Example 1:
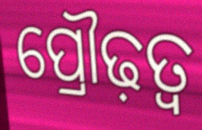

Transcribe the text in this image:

ପ୍ରୌଢ଼ତ୍ୱ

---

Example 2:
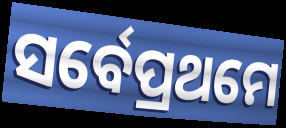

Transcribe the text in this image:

ସର୍ବେପ୍ରଥମେ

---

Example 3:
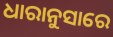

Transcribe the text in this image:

ଧାରାନୁସାରେ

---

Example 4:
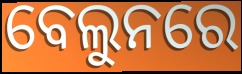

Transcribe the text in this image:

ବେଲୁନରେ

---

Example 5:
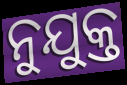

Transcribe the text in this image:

ନୁଯୁକ୍ତ